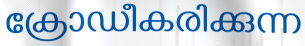
ക്രോഡീകരിക്കുന്ന